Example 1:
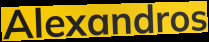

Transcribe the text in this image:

Alexandros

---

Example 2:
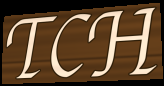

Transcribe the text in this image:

TCH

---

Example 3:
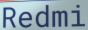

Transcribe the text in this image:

Redmi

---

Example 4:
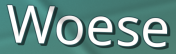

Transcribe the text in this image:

Woese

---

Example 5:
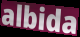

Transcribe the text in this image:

albida